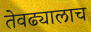
तेवढ्यालाच